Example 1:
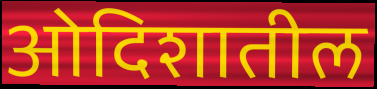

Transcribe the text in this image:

ओदिशातील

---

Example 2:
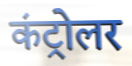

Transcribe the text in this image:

कंट्रोलर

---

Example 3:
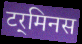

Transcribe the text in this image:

टर्मिनस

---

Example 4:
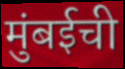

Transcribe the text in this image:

मुंबईची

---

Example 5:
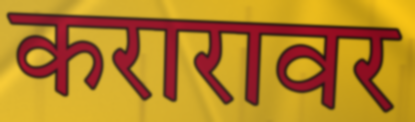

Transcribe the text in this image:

करारावर